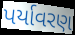
પર્યાવરણ